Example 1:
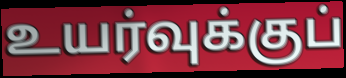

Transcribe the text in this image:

உயர்வுக்குப்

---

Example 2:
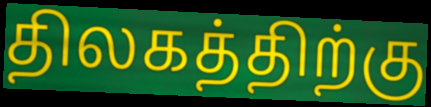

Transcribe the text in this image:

திலகத்திற்கு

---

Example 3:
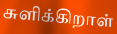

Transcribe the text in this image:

சுளிக்கிறாள்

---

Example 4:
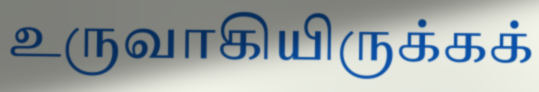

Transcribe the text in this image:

உருவாகியிருக்கக்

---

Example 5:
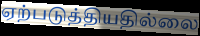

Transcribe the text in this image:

ஏற்படுத்தியதில்லை